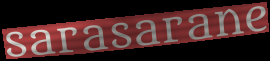
sarasarane